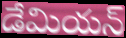
డేమియన్